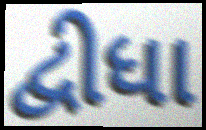
દ્વીધા